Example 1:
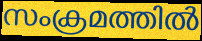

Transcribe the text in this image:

സംക്രമത്തിൽ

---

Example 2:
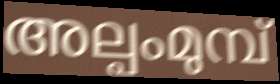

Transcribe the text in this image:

അല്പംമുമ്പ്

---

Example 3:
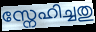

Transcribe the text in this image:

സ്നേഹിച്ചതു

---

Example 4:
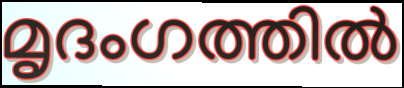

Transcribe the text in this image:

മൃദംഗത്തിൽ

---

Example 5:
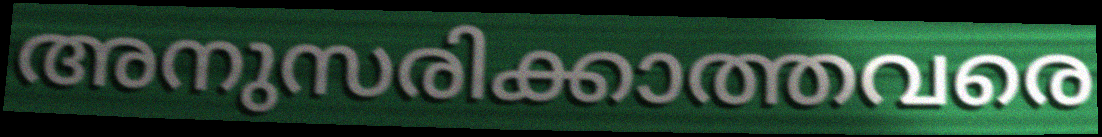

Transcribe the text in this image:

അനുസരിക്കാത്തവരെ